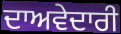
ਦਾਅਵੇਦਾਰੀ